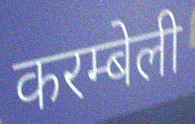
करम्बेली